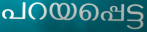
പറയപ്പെട്ട